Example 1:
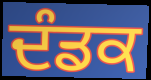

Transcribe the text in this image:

ਦੰਡਕ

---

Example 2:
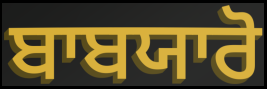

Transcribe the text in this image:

ਬਾਬਯਾਰੋ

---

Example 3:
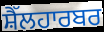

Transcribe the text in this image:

ਸ਼ੈੱਲਹਾਰਬਰ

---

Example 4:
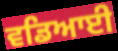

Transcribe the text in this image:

ਵਡਿਆਈ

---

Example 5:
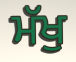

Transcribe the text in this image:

ਮੱਖੁ